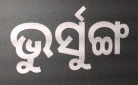
ଭୁର୍ସୁଙ୍ଗ